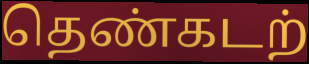
தெண்கடற்